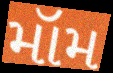
મૉમ